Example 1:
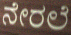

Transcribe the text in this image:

ನೇರಲೆ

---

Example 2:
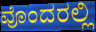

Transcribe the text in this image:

ವೊಂದರಲ್ಲಿ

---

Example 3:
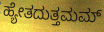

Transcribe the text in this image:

ಹ್ಯೇತದುತ್ತಮಮ್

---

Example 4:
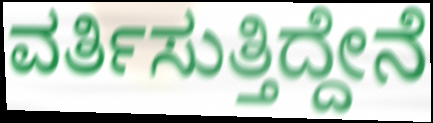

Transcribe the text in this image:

ವರ್ತಿಸುತ್ತಿದ್ದೇನೆ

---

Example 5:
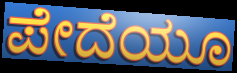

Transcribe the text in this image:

ಪೇದೆಯೂ